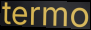
termo